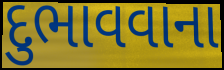
દુભાવવાના